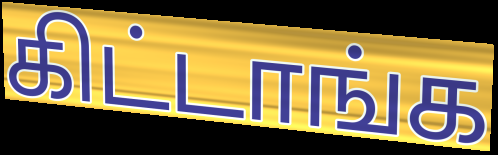
கிட்டாங்க